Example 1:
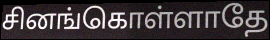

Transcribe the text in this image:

சினங்கொள்ளாதே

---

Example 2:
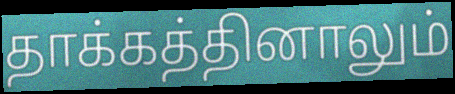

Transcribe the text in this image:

தாக்கத்தினாலும்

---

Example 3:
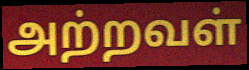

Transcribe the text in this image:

அற்றவள்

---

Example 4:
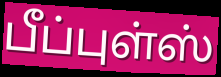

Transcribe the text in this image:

பீப்புள்ஸ்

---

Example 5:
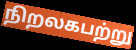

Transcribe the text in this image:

நிறலகபற்று